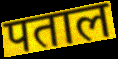
पताल